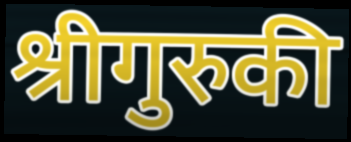
श्रीगुरुकी